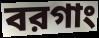
বরগাং